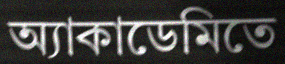
অ্যাকাডেমিতে